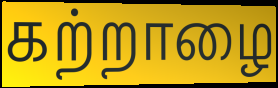
கற்றாழை